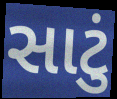
સાટું